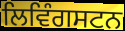
ਲਿਵਿੰਗਸਟਨ